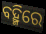
ବହ୍ମିରେ